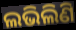
ଲଭିଲିଣି